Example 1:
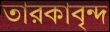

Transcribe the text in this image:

তারকাবৃন্দ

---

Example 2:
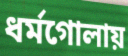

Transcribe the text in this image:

ধর্মগোলায়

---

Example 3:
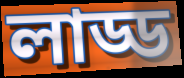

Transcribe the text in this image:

লাড্ড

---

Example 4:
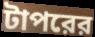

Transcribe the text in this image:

টাপরের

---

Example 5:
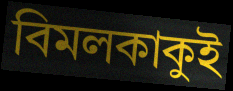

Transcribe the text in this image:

বিমলকাকুই